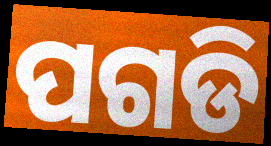
ପଗଡି